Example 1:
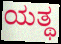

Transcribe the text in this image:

ಯತ್ಥ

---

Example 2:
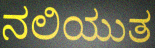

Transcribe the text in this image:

ನಲಿಯುತ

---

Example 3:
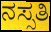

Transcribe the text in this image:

ನಸ್ಸತಿ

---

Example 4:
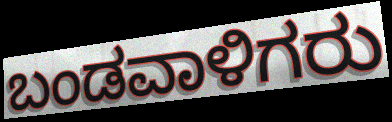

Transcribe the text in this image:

ಬಂಡವಾಳಿಗರು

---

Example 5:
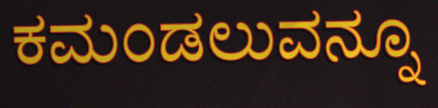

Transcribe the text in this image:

ಕಮಂಡಲುವನ್ನೂ